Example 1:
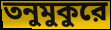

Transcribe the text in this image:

তনুমুকুরে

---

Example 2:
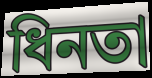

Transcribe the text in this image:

ধিনতা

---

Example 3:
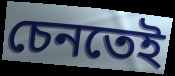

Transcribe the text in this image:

চেনতেই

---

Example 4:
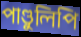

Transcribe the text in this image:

পাণ্ডুলিপি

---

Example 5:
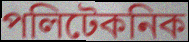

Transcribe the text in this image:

পলিটেকনিক